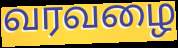
வரவழை